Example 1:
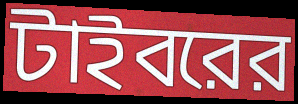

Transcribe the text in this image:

টাইবরের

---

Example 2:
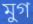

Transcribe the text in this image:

মুগ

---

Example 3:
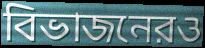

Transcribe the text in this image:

বিভাজনেরও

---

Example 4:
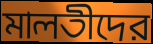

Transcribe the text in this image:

মালতীদের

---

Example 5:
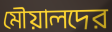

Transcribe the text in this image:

মৌয়ালদের